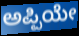
ಅಪ್ಪಿಯೇ